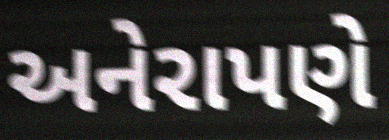
અનેરાપણે